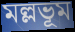
মল্লভূম